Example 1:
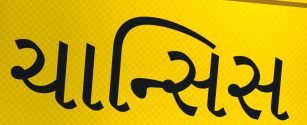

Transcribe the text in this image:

ચાન્સિસ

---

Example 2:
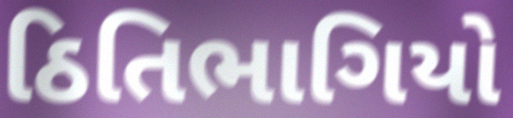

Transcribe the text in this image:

ઠિતિભાગિયો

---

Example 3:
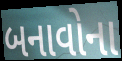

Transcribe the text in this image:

બનાવોના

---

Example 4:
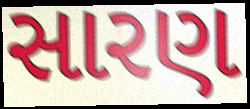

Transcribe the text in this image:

સારણ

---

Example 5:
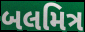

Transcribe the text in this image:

બલમિત્ર